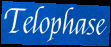
Telophase